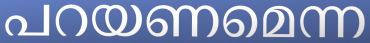
പറയണമെന്ന